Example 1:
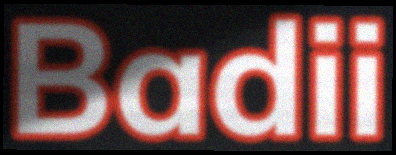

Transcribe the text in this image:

Badii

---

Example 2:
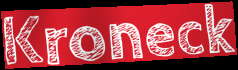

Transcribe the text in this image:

Kroneck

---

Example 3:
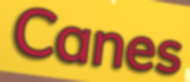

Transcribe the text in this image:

Canes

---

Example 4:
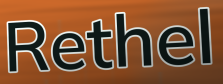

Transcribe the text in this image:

Rethel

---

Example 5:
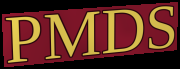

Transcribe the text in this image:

PMDS